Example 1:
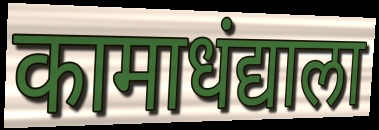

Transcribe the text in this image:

कामाधंद्याला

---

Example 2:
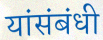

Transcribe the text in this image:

यांसंबंधी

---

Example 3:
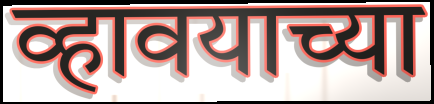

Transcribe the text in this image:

व्हावयाच्या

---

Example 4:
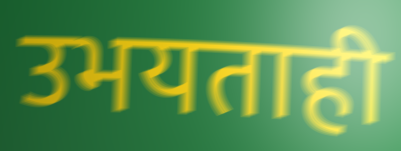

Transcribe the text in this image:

उभयताही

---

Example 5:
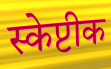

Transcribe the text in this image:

स्केप्टीक